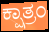
ಕ್ಷಾತ್ರಂ